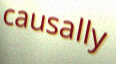
causally